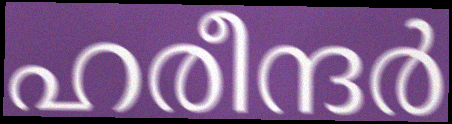
ഹരീന്ദർ